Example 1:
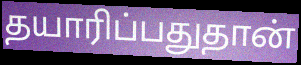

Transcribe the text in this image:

தயாரிப்பதுதான்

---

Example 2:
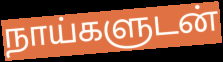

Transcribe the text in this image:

நாய்களுடன்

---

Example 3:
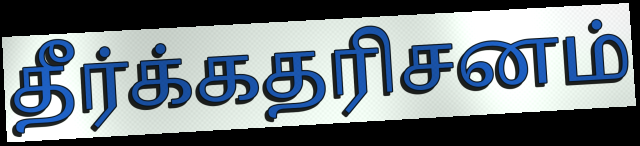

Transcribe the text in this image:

தீர்க்கதரிசனம்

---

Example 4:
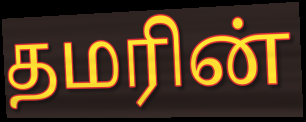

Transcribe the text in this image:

தமரின்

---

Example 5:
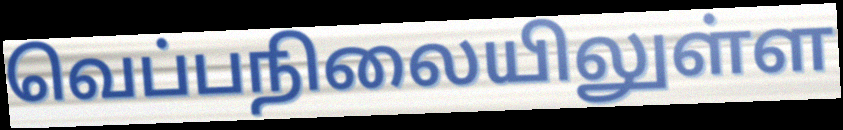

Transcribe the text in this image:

வெப்பநிலையிலுள்ள